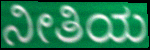
ನೀತಿಯ